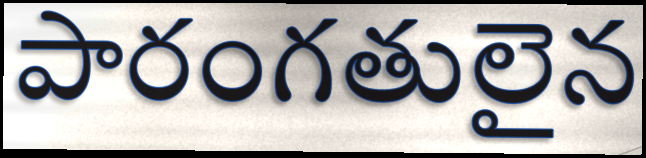
పారంగతులైన